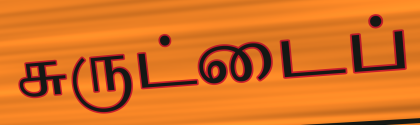
சுருட்டைப்